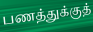
பணத்துக்குத்